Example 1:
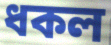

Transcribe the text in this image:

ধকল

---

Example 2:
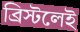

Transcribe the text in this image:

ব্রিস্টলেই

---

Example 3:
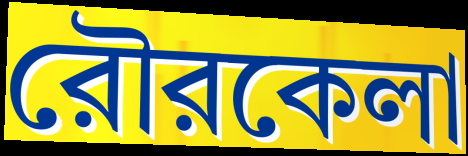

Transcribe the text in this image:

রৌরকেলা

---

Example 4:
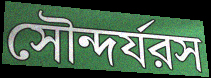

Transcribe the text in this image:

সৌন্দর্যরস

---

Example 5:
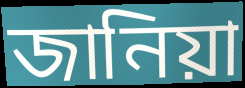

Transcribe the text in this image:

জানিয়া